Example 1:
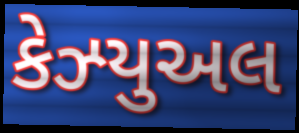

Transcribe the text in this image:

કેઝ્યુઅલ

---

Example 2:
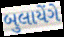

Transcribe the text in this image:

બુલાયેંગે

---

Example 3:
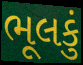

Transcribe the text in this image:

ભૂલકું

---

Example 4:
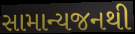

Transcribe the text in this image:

સામાન્યજનથી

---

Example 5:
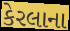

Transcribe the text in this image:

કેરલાના